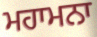
ਮਹਾਮਨਾ